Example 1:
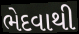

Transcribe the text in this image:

ભેદવાથી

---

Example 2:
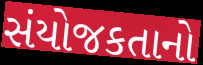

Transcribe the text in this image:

સંયોજકતાનો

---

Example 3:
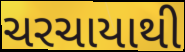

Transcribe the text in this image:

ચરચાયાથી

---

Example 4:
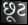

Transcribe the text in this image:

છૂટ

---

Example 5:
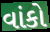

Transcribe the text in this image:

વાંકો